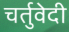
चर्तुवेदी